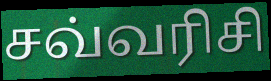
சவ்வரிசி